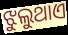
ଝୁଲୁଥାଏ